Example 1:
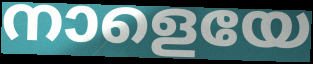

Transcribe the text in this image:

നാളെയേ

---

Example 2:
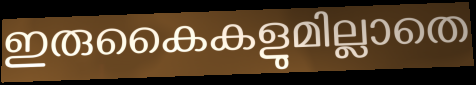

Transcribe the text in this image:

ഇരുകൈകളുമില്ലാതെ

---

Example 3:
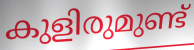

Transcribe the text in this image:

കുളിരുമുണ്ട്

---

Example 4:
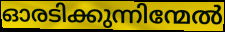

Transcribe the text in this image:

ഓരടിക്കുന്നിന്മേൽ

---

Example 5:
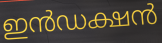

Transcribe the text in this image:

ഇൻഡക്ഷൻ